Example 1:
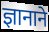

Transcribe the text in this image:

ज्ञानाने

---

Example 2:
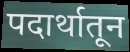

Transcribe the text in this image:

पदार्थातून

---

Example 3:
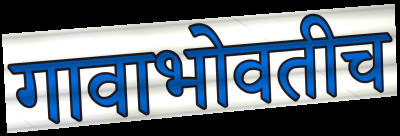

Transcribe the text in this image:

गावाभोवतीच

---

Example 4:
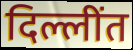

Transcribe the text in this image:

दिल्लींत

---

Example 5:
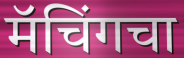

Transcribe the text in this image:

मॅचिंगचा